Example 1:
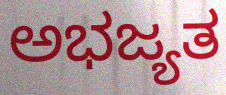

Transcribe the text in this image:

ಅಭಜ್ಯತ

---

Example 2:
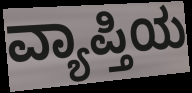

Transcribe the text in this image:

ವ್ಯಾಪ್ತಿಯ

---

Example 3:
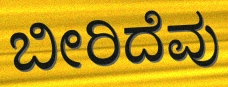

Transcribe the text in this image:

ಬೀರಿದೆವು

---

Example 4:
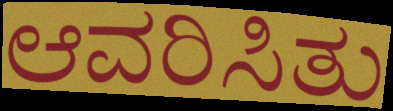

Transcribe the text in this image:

ಆವರಿಸಿತು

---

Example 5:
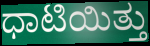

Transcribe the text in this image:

ಧಾಟಿಯಿತ್ತು